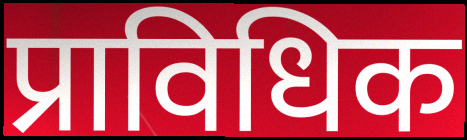
प्राविधिक